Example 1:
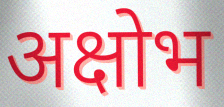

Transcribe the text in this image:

अक्षोभ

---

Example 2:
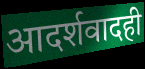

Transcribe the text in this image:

आदर्शवादही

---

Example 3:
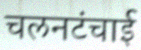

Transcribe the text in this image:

चलनटंचाई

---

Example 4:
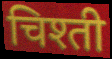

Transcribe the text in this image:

चिश्ती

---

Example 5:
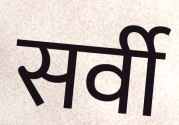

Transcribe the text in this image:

सर्वी